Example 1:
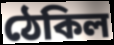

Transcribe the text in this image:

ঠেকিল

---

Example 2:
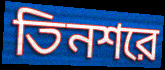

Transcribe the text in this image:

তিনশরে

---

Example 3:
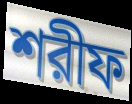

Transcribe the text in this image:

শরীফ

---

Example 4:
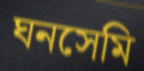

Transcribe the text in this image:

ঘনসেমি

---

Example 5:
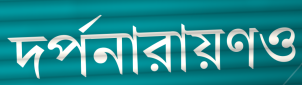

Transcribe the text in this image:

দর্পনারায়ণও